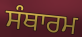
ਸੰਥਾਰਮ